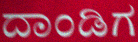
ದಾಂಡಿಗ